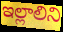
ఇల్లాలిని